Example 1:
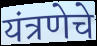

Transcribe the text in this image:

यंत्रणेचे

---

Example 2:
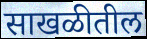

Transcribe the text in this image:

साखळीतील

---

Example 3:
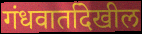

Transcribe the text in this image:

गंधवार्तादेखील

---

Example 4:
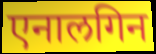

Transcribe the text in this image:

एनालगिन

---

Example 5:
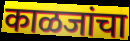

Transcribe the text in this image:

काळजांचा